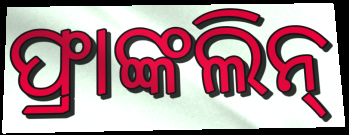
ଫ୍ରାଙ୍କଲିନ୍